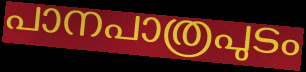
പാനപാത്രപുടം